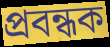
প্ৰবন্ধক